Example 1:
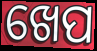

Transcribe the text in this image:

ଖେପ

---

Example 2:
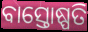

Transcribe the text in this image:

ବାସ୍ତୋଷ୍ପତି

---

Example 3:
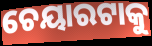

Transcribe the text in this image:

ଚେୟାରଟାକୁ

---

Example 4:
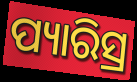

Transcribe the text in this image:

ପ୍ୟାରିସ୍ର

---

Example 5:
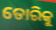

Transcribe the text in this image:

ଡୋରିକୁ